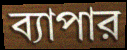
ব্যাপার